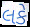
લકે